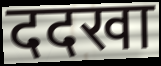
ददखा